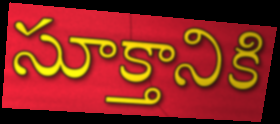
సూక్తానికి